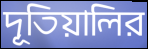
দূতিয়ালির